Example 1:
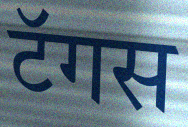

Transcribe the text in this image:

टॅगस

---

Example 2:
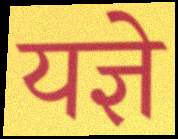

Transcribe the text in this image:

यज्ञे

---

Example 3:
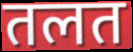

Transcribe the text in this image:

तलत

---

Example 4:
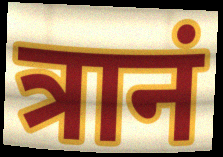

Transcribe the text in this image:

त्रानं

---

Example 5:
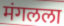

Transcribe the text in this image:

मंगलला